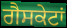
ਗੈਸਕੇਟਾਂ